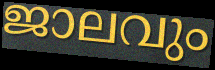
ജാലവും